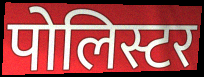
पोलिस्टर